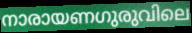
നാരായണഗുരുവിലെ